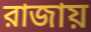
রাজায়